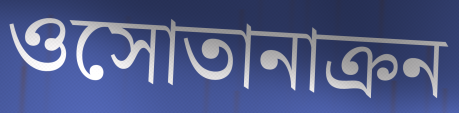
ওসোতানাক্রন